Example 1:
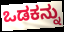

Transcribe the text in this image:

ಒಡಕನ್ನು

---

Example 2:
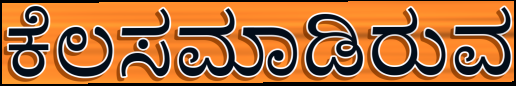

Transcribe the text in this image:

ಕೆಲಸಮಾಡಿರುವ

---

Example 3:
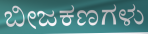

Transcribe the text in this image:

ಬೀಜಕಣಗಳು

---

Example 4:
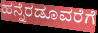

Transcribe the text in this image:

ಹನ್ನೆರಡೂವರೆಗೆ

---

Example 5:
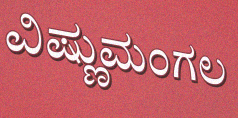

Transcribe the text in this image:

ವಿಷ್ಣುಮಂಗಲ